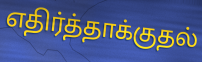
எதிர்த்தாக்குதல்